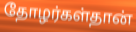
தோழர்கள்தான்